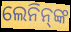
ଲେନିନ୍‌ଙ୍କ